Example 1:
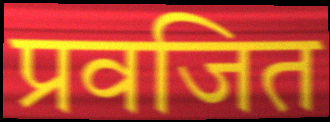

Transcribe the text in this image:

प्रवजित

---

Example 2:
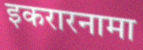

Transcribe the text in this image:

इकरारनामा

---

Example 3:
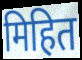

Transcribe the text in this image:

मिहित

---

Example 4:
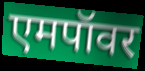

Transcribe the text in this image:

एमपॉवर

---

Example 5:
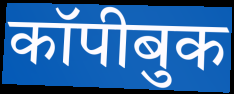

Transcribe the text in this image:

कॉपीबुक